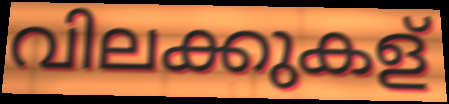
വിലക്കുകള്